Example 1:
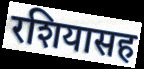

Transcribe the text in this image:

रशियासह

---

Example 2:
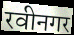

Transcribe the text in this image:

रवीनगर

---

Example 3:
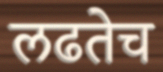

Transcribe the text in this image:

लढतेच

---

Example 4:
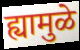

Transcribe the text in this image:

ह्यामुळे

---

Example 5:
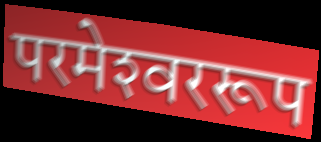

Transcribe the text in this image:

परमेश्वररूप